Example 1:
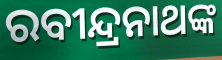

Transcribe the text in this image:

ରବୀନ୍ଦ୍ରନାଥଙ୍କ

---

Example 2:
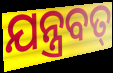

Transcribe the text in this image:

ଯନ୍ତ୍ରବତ୍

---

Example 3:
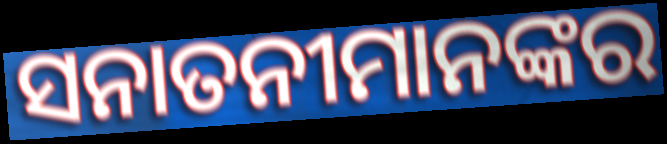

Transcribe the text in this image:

ସନାତନୀମାନଙ୍କର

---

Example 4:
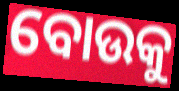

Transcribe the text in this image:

ବୋଉକୁ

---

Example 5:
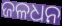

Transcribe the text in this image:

ଜଳଧନ